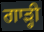
ਗਾੜ੍ਹੀ